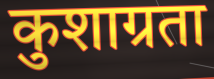
कुशाग्रता